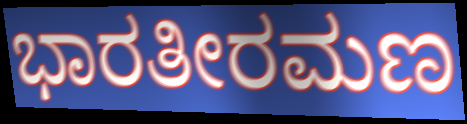
ಭಾರತೀರಮಣ